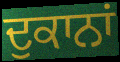
ਦੁਕਾਨਾਂ